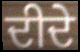
ਦੀਦੇ